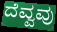
ದೆವ್ವವು